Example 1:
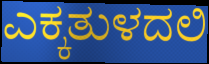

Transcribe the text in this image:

ಎಕ್ಕತುಳದಲಿ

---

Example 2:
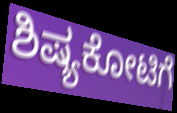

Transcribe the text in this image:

ಶಿಷ್ಯಕೋಟಿಗೆ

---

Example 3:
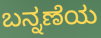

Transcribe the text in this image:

ಬನ್ನಣೆಯ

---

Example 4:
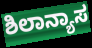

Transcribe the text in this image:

ಶಿಲಾನ್ಯಾಸ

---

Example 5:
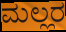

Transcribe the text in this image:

ಮಲ್ಲರ